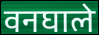
वनघाले